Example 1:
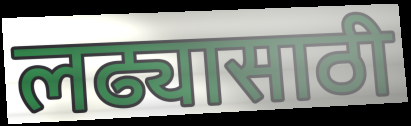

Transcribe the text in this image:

लढ्यासाठी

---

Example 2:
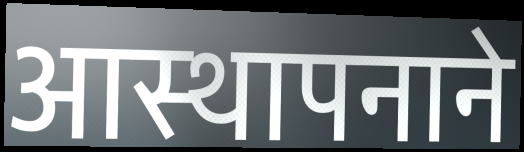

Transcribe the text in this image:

आस्थापनाने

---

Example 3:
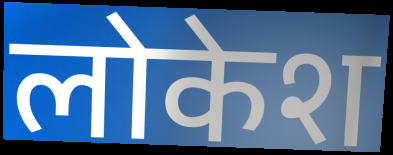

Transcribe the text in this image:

लोकेश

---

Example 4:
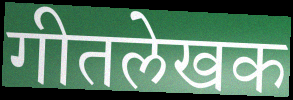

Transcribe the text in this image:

गीतलेखक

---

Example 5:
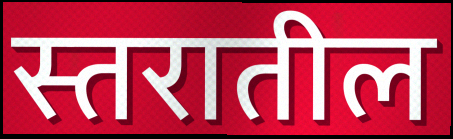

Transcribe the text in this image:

स्तरातील